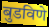
बुडविणे